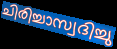
ചിരിച്ചാസ്വദിച്ചു